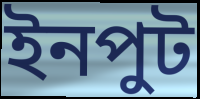
ইনপুট